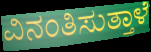
ವಿನಂತಿಸುತ್ತಾಳೆ